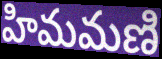
హిమమణి